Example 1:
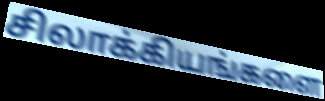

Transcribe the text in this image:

சிலாக்கியங்களை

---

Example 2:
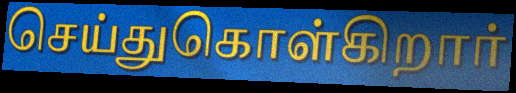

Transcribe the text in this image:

செய்துகொள்கிறார்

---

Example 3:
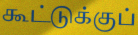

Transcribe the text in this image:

கூட்டுக்குப்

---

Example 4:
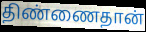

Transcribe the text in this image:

திண்ணைதான்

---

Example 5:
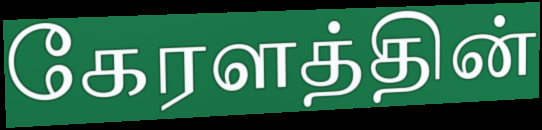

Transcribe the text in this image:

கேரளத்தின்